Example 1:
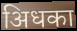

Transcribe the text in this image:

अिधका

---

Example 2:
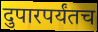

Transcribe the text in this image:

दुपारपर्यंतच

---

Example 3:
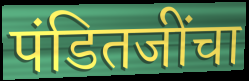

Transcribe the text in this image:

पंडितजींचा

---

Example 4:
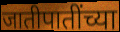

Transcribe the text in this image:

जातीपातींच्या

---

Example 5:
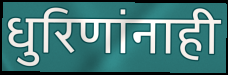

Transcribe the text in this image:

धुरिणांनाही